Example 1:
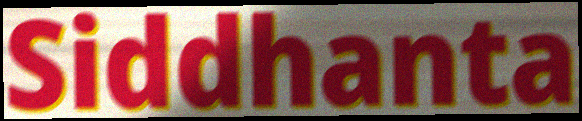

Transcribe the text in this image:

Siddhanta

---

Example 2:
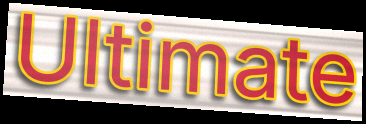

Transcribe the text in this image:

Ultimate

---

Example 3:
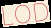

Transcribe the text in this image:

LOD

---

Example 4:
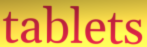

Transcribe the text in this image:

tablets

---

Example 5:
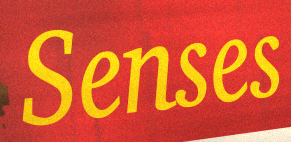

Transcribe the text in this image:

Senses